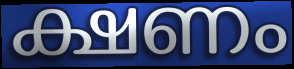
ക്ഷണം